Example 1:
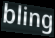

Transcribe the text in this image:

bling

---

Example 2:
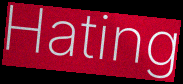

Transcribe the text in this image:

Hating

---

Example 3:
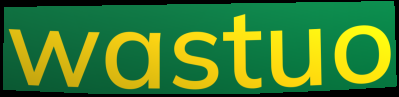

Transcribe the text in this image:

wastuo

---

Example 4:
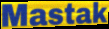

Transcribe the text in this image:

Mastak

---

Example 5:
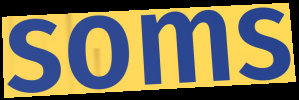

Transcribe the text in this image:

soms